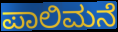
ಪಾಲಿಮನೆ